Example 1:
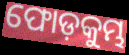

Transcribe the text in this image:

ଫୋଡ଼କୁମ୍ଭ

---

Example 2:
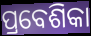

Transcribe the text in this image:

ପ୍ରବେଶିକା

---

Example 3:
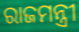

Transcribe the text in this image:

ରାଜମନ୍ତ୍ରୀ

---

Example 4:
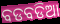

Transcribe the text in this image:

ବଡବଡିଆ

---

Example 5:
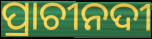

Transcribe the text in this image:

ପ୍ରାଚୀନଦୀ